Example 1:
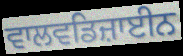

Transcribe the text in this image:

ਵਾਲਵਡਿਜ਼ਾਈਨ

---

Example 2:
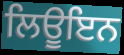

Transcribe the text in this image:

ਲਿਊਇਨ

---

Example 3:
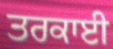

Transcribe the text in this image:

ਤਰਕਾਈ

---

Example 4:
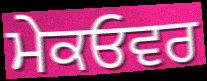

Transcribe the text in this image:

ਮੇਕਓਵਰ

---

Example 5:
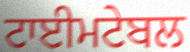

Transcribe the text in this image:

ਟਾਈਮਟੇਬਲ